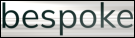
bespoke